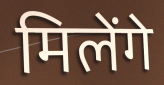
मिलेंगे